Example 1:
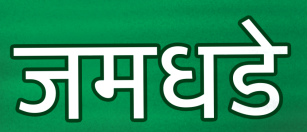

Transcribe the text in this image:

जमधडे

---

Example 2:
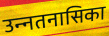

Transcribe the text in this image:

उन्नतनासिका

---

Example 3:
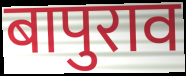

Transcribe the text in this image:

बापुराव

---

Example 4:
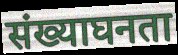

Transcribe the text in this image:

संख्याघनता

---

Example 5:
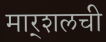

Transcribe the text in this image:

मार्शलची